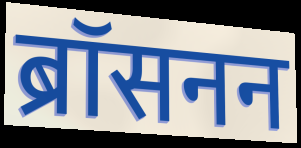
ब्रॉसनन